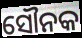
ସୌନକ